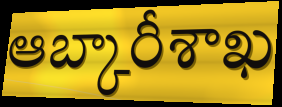
ఆబ్కారీశాఖ